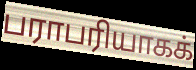
பராபரியாகக்